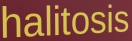
halitosis